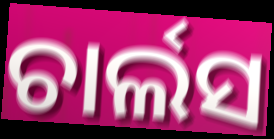
ଚାର୍ଲସ